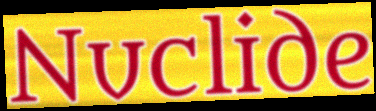
Nuclide